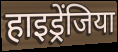
हाइड्रेंजिया